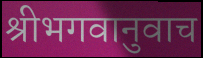
श्रीभगवानुवाच